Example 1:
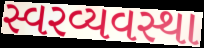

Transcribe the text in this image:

સ્વરવ્યવસ્થા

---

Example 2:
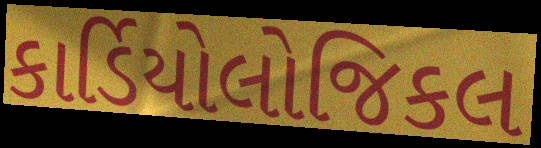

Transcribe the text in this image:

કાર્ડિયોલોજિકલ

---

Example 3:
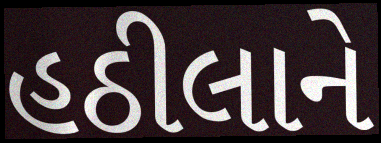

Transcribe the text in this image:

હઠીલાને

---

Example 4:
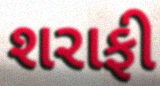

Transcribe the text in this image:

શરાફી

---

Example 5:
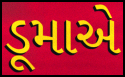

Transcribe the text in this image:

ડૂમાએ